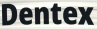
Dentex